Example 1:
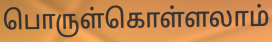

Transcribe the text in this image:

பொருள்கொள்ளலாம்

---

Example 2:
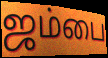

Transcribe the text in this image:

ஜம்பை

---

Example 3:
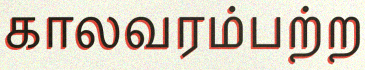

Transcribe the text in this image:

காலவரம்பற்ற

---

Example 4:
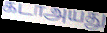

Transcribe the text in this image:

கடாஅயது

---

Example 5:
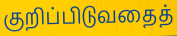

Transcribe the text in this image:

குறிப்பிடுவதைத்